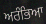
ਅਰੰਭਿਆ